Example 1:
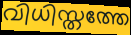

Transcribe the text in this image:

വിധിസ്തത്തേ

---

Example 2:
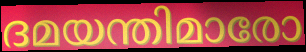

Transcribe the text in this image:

ദമയന്തിമാരോ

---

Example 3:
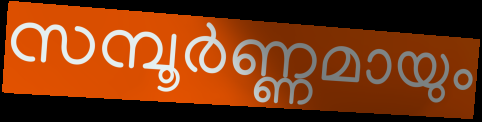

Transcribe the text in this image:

സമ്പൂർണ്ണമായും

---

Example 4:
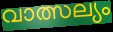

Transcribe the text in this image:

വാത്സല്യം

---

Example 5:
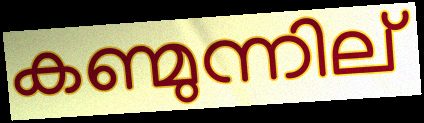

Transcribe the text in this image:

കണ്മുന്നില്